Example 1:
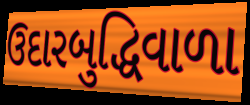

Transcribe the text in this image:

ઉદારબુદ્ધિવાળા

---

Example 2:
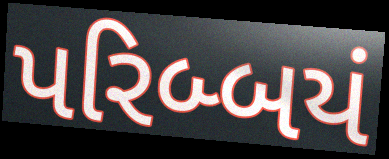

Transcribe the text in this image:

પરિબ્બયં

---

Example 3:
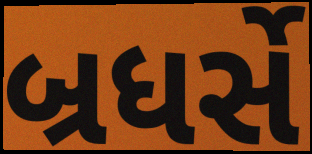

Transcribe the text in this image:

બ્રધર્સે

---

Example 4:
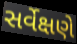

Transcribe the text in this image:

સર્વેક્ષણે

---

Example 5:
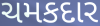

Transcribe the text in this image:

ચમકદાર